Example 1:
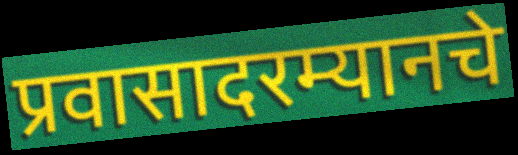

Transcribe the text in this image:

प्रवासादरम्यानचे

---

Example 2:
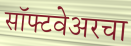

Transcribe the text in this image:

सॉफ्टवेअरचा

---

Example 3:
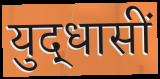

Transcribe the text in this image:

युद्धासीं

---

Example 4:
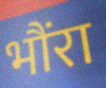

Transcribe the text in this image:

भौंरा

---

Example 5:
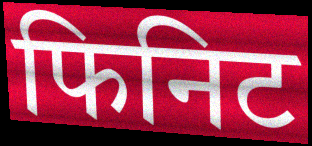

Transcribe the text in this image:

फिनिट